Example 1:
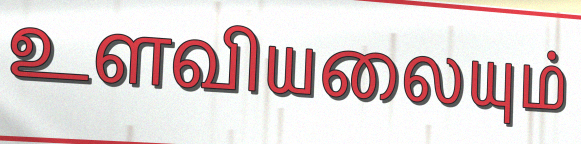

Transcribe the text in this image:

உளவியலையும்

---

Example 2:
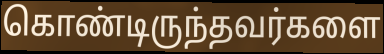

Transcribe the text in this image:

கொண்டிருந்தவர்களை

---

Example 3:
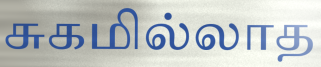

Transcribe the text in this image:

சுகமில்லாத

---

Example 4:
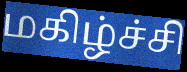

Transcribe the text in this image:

மகிழ்ச்சி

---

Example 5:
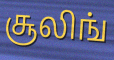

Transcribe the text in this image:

சூலிங்